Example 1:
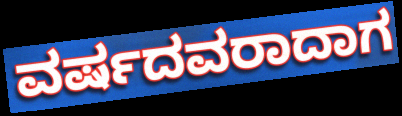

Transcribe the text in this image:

ವರ್ಷದವರಾದಾಗ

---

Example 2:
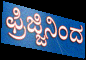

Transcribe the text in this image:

ಫ್ರಿಜ್ಜಿನಿಂದ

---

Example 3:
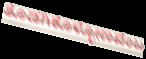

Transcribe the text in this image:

ತೊಡಗಿಕೊಳ್ಳೋಣವೆಂಬ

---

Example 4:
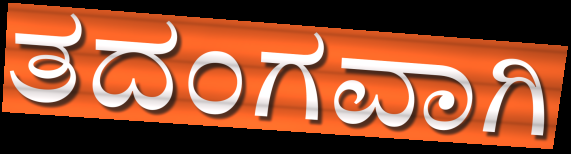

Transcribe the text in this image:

ತದಂಗವಾಗಿ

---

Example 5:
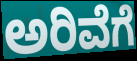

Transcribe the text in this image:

ಅರಿವೆಗೆ